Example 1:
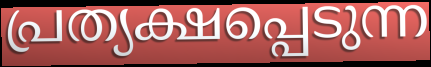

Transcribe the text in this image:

പ്രത്യക്ഷപ്പെടുന്ന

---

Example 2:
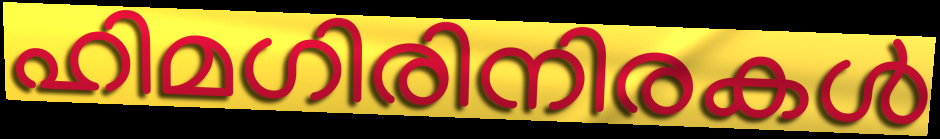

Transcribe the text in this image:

ഹിമഗിരിനിരകൾ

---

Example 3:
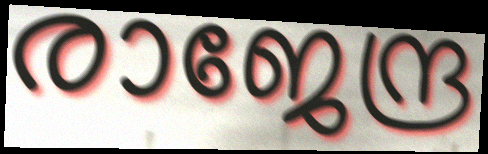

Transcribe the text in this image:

രാജേന്ദ്ര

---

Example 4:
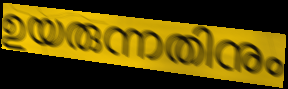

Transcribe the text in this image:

ഉയരുന്നതിനും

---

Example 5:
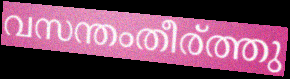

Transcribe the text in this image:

വസന്തംതീര്ത്തു